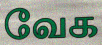
வேக